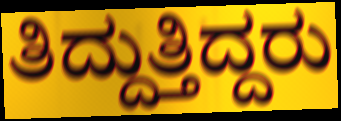
ತಿದ್ದುತ್ತಿದ್ದರು